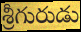
శ్రీగురుడు